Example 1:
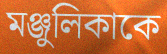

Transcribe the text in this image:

মঞ্জুলিকাকে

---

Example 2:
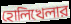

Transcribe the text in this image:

হোলিখেলার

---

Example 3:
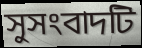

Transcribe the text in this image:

সুসংবাদটি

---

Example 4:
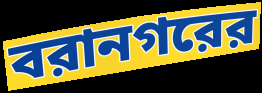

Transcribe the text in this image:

বরানগরের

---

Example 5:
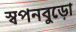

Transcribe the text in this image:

স্বপনবুড়ো